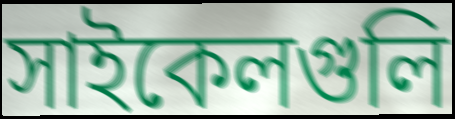
সাইকেলগুলি